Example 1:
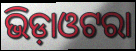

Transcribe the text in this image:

ଭିଡ଼ାଓଟରା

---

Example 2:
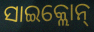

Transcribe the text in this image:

ସାଇକ୍ଲୋନ୍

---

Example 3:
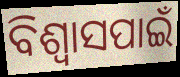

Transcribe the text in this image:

ବିଶ୍ୱାସପାଇଁ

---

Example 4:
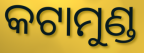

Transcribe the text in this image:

କଟାମୁଣ୍ଡ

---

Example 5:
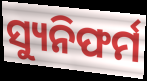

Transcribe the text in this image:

ସ୍ୟୁନିଫର୍ମ